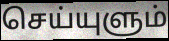
செய்யுளும்